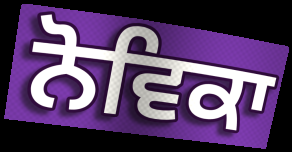
ਨੋਵਿਕਾ